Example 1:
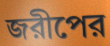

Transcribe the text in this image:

জরীপের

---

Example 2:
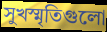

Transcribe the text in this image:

সুখস্মৃতিগুলো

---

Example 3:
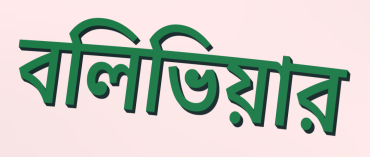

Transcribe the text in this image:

বলিভিয়ার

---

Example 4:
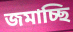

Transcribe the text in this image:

জমাচ্ছি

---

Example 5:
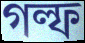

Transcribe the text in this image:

গল্ফ